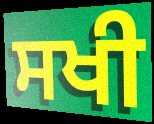
ਸਖੀ